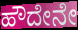
ಹೌದೇನೇ